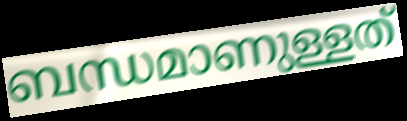
ബന്ധമാണുള്ളത്